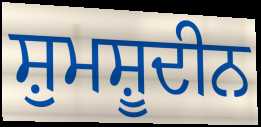
ਸ਼ੁਮਸ਼ੂਦੀਨ